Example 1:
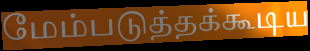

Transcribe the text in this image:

மேம்படுத்தக்கூடிய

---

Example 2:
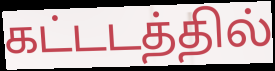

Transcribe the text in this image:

கட்டடத்தில்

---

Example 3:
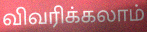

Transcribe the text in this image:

விவரிக்கலாம்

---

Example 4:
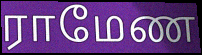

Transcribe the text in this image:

ராமேண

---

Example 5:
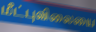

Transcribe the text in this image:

மீட்புவிலையை